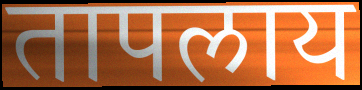
तापलाय